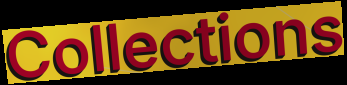
Collections